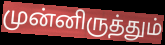
முன்னிருத்தும்